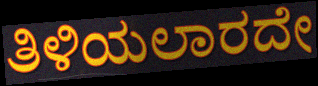
ತಿಳಿಯಲಾರದೇ